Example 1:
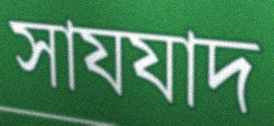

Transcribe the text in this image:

সাযযাদ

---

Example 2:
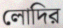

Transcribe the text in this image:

লোদির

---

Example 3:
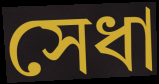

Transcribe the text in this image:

সেধা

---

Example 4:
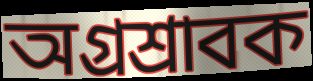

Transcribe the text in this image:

অগ্রশ্রাবক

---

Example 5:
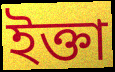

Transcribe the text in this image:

ইক্তা